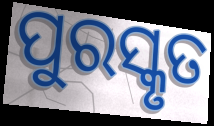
ପୁରସ୍କୃତ